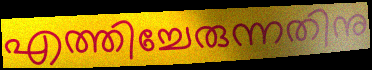
എത്തിച്ചേരുന്നതിനു